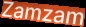
Zamzam